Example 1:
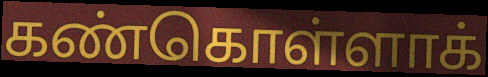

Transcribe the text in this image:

கண்கொள்ளாக்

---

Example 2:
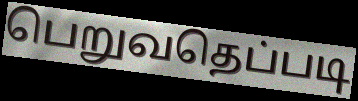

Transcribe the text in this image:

பெறுவதெப்படி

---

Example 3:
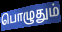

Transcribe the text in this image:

பொழுதும்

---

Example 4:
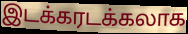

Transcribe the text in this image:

இடக்கரடக்கலாக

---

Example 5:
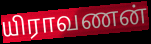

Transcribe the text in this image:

யிராவணன்